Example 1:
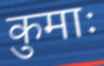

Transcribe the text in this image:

कुमाः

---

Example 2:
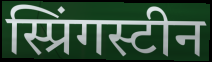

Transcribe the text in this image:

स्प्रिंगस्टीन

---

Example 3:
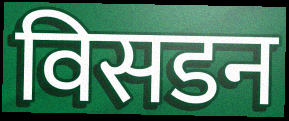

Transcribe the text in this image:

विसडन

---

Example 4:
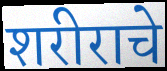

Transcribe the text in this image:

शरीराचे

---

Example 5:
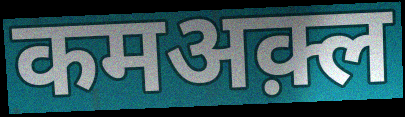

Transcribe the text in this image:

कमअक़्ल